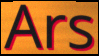
Ars